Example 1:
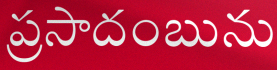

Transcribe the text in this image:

ప్రసాదంబును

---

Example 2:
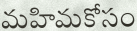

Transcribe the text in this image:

మహిమకోసం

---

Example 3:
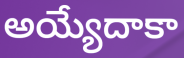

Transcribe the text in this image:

అయ్యేదాకా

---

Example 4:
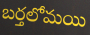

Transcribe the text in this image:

బర్తలోమయి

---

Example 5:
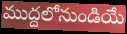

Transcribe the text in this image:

ముద్దలోనుండియే